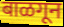
बाळगून